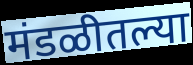
मंडळीतल्या